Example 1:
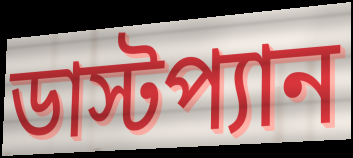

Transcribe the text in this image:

ডাস্টপ্যান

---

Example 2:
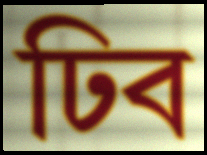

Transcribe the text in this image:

ঢিব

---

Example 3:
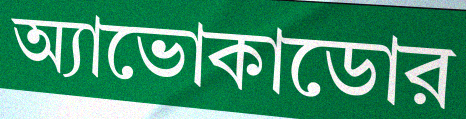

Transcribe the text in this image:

অ্যাভোকাডোর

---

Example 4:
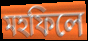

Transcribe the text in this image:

মহফিলে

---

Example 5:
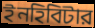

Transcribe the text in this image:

ইনহিবিটার